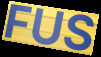
FUS